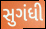
સુગંધી